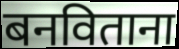
बनविताना